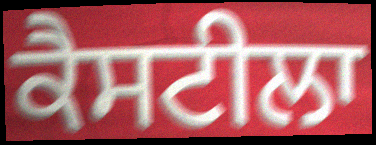
ਕੈਸਟੀਲਾ